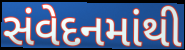
સંવેદનમાંથી